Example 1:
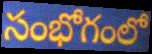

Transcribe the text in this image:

సంభోగంలో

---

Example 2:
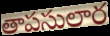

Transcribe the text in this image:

తాపసులార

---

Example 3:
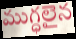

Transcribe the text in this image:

ముగ్ధలైన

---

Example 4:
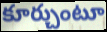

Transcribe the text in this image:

కూర్చుంటూ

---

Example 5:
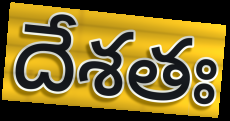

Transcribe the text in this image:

దేశతః